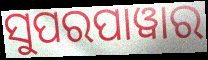
ସୁପରପାୱାର